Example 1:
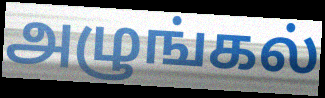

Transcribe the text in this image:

அழுங்கல்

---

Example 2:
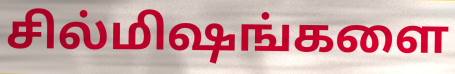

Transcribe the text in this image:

சில்மிஷங்களை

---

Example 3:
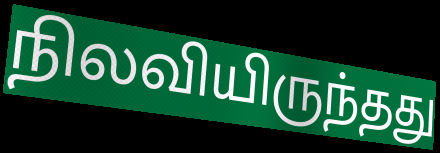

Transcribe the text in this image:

நிலவியிருந்தது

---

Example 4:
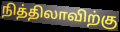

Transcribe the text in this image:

நித்திலாவிற்கு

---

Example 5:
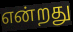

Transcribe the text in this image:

என்றது